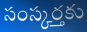
సంస్కర్తకు